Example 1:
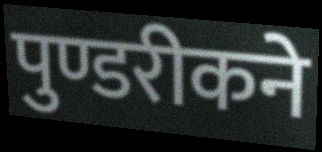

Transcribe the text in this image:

पुण्डरीकने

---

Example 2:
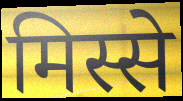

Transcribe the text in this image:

मिस्से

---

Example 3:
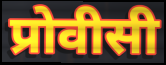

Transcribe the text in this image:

प्रोवीसी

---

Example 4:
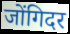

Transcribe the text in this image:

जोंगिदर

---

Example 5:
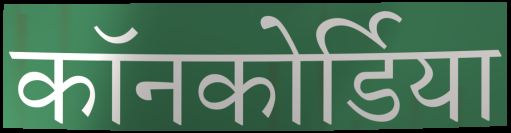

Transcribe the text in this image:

कॉनकोर्डिया